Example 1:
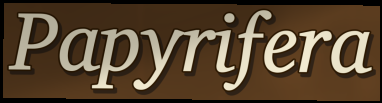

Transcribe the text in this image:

Papyrifera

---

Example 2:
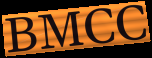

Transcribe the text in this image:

BMCC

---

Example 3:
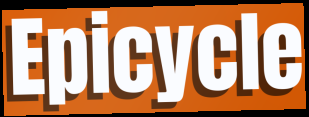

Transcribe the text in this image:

Epicycle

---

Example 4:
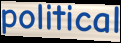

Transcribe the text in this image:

political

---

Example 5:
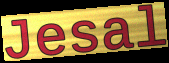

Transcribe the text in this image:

Jesal